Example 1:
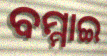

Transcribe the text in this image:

ବମ୍ମାଇ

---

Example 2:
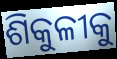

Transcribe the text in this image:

ଶିକୁଳୀକୁ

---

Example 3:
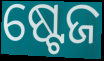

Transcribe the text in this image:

ଷ୍ଟେଜ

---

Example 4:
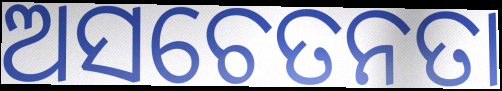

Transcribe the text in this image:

ଅସଚେତନତା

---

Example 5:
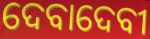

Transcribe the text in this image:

ଦେବାଦେବୀ